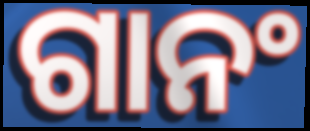
ଗାନଂ